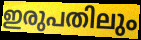
ഇരുപതിലും